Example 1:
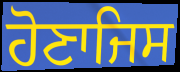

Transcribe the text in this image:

ਹੋਣਾਜਿਸ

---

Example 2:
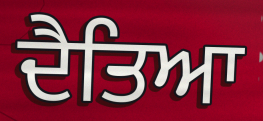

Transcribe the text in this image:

ਦੈਤਿਆ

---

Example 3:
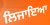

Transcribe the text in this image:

ਲਿਜਾਇਆ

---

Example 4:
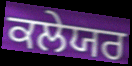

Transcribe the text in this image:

ਕਲੇਯਰ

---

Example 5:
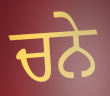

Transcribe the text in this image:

ਚਨੇ